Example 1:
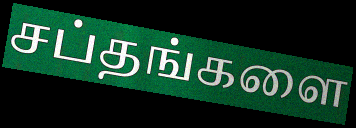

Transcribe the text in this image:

சப்தங்களை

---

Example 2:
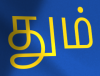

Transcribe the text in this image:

தும்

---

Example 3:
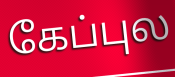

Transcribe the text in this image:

கேப்புல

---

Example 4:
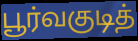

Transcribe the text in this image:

பூர்வகுடித்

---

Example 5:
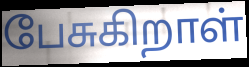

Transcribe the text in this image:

பேசுகிறாள்